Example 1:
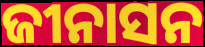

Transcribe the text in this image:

ଜୀନାସନ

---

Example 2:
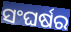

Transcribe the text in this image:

ସଂଘର୍ଷର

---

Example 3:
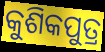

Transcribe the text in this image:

କୁଶିକପୁତ୍ର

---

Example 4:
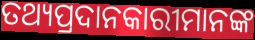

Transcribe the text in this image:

ତଥ୍ୟପ୍ରଦାନକାରୀମାନଙ୍କ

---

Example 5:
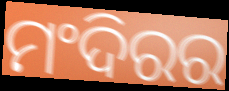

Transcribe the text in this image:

ମଂଦିରର